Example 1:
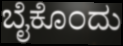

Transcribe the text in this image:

ಬೈಕೊಂದು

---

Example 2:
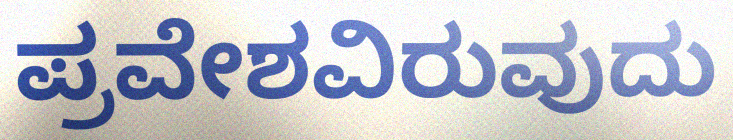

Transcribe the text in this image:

ಪ್ರವೇಶವಿರುವುದು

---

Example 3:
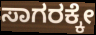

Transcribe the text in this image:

ಸಾಗರಕ್ಕೇ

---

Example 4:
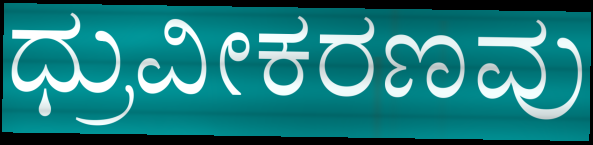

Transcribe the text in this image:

ಧ್ರುವೀಕರಣವು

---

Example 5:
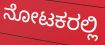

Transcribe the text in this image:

ನೋಟಕರಲ್ಲಿ